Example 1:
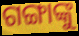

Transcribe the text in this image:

ଗଙ୍ଗାଙ୍କୁ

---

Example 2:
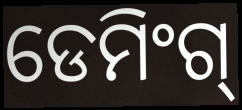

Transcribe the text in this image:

ଡେମିଂଗ୍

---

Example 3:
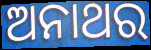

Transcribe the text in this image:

ଅନାଥର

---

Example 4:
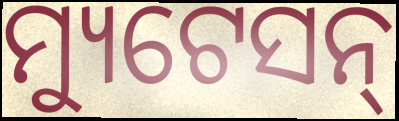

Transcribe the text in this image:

ମ୍ୟୁଟେସନ୍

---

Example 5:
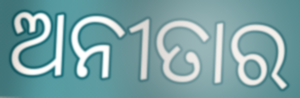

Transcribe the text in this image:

ଅନୀତାର